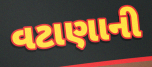
વટાણાની